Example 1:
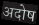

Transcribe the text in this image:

अदोष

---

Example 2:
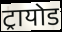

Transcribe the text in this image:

ट्रायोड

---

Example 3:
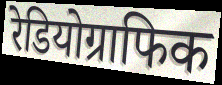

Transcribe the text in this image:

रेडियोग्राफिक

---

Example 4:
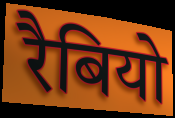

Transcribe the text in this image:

रैबियो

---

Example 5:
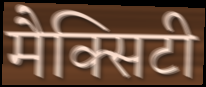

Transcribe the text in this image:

मैक्सिटी